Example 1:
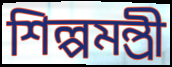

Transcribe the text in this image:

শিল্পমন্ত্রী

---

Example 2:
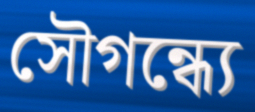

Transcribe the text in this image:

সৌগন্ধ্যে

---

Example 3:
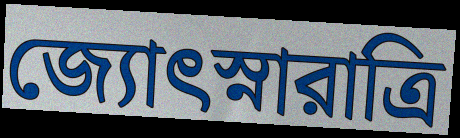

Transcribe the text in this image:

জ্যোৎস্নারাত্রি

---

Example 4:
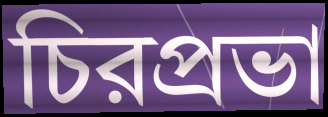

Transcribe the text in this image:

চিরপ্রভা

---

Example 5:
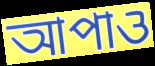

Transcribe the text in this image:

আপাও